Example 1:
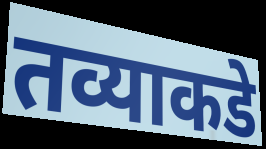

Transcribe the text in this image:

तव्याकडे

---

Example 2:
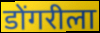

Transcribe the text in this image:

डोंगरीला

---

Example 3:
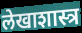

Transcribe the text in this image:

लेखाशास्त्र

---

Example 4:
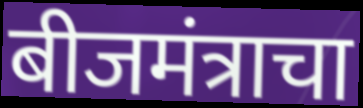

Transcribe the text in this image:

बीजमंत्राचा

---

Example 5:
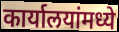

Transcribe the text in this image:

कार्यालयांमध्ये